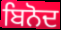
ਬਿਨੋਦ